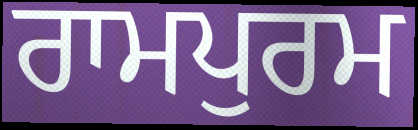
ਰਾਮਪੁਰਮ